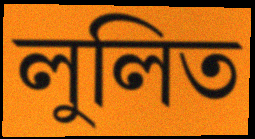
লুলিত